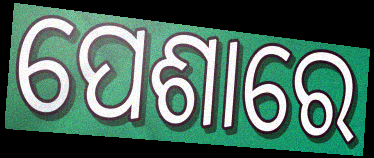
ପେଶାରେ